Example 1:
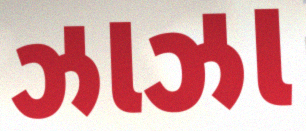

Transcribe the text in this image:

ઝાઝા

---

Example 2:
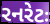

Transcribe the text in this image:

રનરેટઃ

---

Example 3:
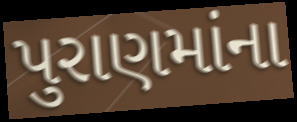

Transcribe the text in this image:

પુરાણમાંના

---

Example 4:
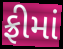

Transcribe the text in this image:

ફ્રીમાં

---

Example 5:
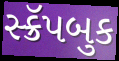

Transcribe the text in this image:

સ્ક્રૅપબુક